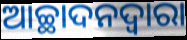
ଆଚ୍ଛାଦନଦ୍ୱାରା